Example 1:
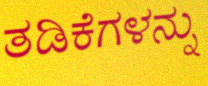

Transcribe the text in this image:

ತಡಿಕೆಗಳನ್ನು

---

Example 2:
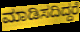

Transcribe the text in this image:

ಮಾಡಿಸದಿದ್ದರೆ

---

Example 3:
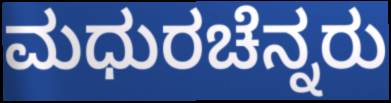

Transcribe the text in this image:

ಮಧುರಚೆನ್ನರು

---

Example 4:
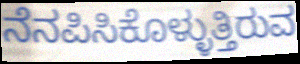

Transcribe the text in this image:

ನೆನಪಿಸಿಕೊಳ್ಳುತ್ತಿರುವ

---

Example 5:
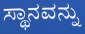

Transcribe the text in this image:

ಸ್ಥಾನವನ್ನು